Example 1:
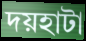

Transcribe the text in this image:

দয়হাটা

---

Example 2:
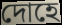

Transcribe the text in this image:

দোহে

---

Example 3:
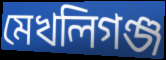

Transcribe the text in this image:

মেখলিগঞ্জ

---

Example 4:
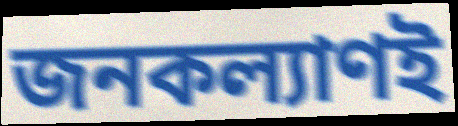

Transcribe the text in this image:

জনকল্যাণই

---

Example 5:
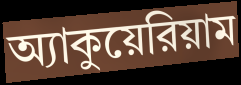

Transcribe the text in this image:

অ্যাকুয়েরিয়াম